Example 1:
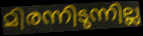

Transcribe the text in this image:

മിരന്നിടുന്നില്ല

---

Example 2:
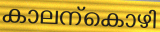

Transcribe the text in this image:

കാലന്കൊഴി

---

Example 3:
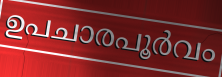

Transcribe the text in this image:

ഉപചാരപൂർവം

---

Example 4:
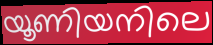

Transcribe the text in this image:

യൂണിയനിലെ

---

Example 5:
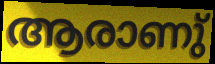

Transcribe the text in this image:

ആരാണു്